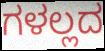
ಗಳಲ್ಲದ